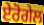
ਏਰੋਗੇਲ